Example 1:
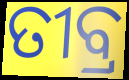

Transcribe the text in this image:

ତୀବ୍ର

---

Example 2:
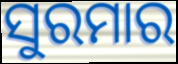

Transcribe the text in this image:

ସୁରମାର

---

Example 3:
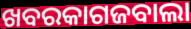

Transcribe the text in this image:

ଖବରକାଗଜବାଲା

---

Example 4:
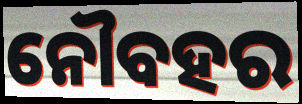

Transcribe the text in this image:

ନୌବହର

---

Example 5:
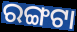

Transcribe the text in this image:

ରଙ୍ଗଟା